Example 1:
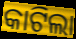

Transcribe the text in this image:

କାଟିଲା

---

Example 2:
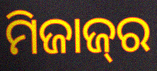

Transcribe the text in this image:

ମିଜାଜ୍‌ର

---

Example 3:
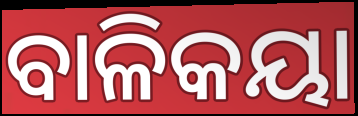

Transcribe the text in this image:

ବାଳିକୟା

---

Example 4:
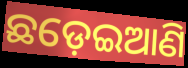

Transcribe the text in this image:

ଛଡ଼େଇଆଣି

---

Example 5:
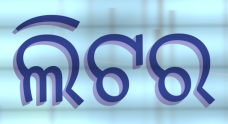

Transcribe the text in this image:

ଲିଟର